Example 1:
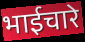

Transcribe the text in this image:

भाईचारे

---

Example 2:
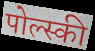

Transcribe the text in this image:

पोल्स्की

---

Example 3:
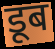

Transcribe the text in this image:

डूब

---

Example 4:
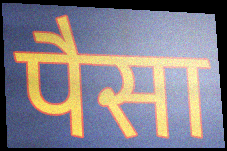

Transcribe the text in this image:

पैसा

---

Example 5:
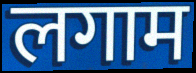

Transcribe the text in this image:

लगाम